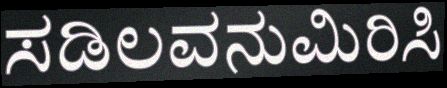
ಸಡಿಲವನುಮಿರಿಸಿ